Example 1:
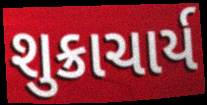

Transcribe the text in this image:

શુક્રાચાર્ય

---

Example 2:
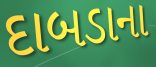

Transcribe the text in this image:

દાબડાના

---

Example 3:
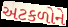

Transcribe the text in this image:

અટકળોને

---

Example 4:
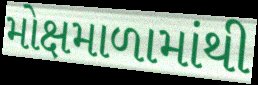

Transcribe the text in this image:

મોક્ષમાળામાંથી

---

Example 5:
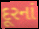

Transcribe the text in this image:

દૂરનાં